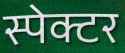
स्पेक्टर